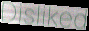
Disliked